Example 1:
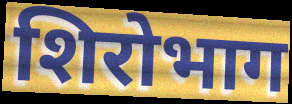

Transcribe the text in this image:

शिरोभाग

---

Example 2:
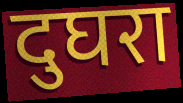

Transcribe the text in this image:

दुघरा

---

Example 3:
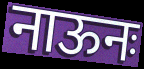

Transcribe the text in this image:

नाऊनः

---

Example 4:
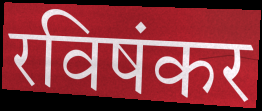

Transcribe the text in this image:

रविषंकर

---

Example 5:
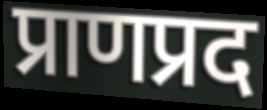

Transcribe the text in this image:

प्राणप्रद